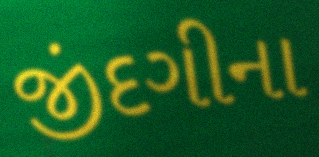
જીંદગીના